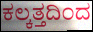
ಕಲ್ಕತ್ತದಿಂದ